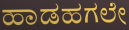
ಹಾಡಹಗಲೇ